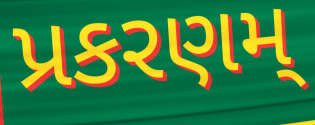
પ્રકરણમ્